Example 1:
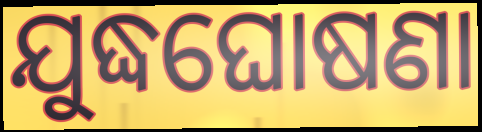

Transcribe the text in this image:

ଯୁଦ୍ଧଘୋଷଣା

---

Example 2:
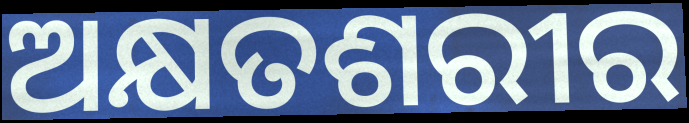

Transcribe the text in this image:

ଅକ୍ଷତଶରୀର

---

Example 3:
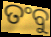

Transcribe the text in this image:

ତଂବୁ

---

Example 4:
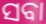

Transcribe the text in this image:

ସବା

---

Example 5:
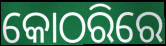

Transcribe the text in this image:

କୋଠରିରେ